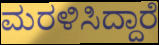
ಮರಳಿಸಿದ್ದಾರೆ